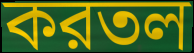
করতল